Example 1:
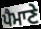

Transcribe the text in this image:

ਪੈਮਾਣੇ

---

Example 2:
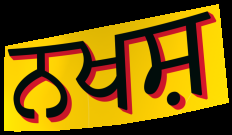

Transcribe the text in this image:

ਨਖਸ਼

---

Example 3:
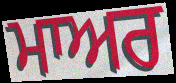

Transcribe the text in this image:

ਮਾਅਰ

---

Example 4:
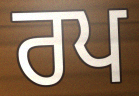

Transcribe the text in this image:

ਰਪ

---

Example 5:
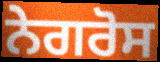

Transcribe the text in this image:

ਨੇਗਰੋਸ